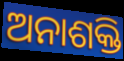
ଅନାଶକ୍ତି